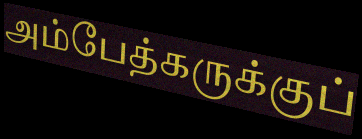
அம்பேத்கருக்குப்